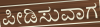
ಪೀಡಿಸುವಾಗ